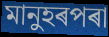
মানুহৰপৰা